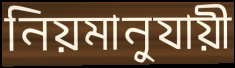
নিয়মানুযায়ী